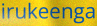
irukeenga